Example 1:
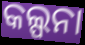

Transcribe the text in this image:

କଲ୍ପନା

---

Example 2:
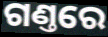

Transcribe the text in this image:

ଗଣ୍ତରେ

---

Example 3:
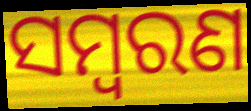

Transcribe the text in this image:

ସମ୍ଵରଣ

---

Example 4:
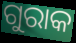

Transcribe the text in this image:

ଗୁରାକ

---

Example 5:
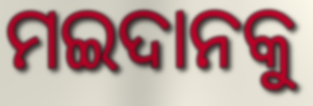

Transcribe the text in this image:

ମଇଦାନକୁ